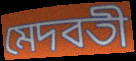
মেদবতী